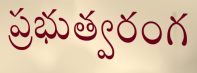
ప్రభుత్వరంగ